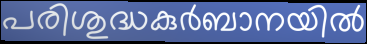
പരിശുദ്ധകുർബാനയിൽ